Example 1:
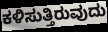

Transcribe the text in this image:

ಕಳಿಸುತ್ತಿರುವುದು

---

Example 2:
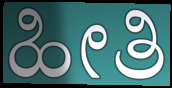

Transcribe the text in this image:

ಹೀತಿ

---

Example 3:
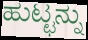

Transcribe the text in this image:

ಹುಟ್ಟನ್ನು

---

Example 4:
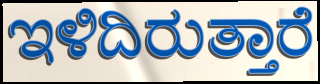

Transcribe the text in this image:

ಇಳಿದಿರುತ್ತಾರೆ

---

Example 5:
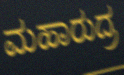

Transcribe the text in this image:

ಮಹಾರುದ್ರ